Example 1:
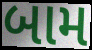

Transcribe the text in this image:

બામ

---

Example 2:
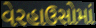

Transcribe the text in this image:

વેરહાઉસોમાં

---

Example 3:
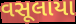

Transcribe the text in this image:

વસૂલાયા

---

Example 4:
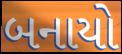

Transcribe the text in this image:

બનાયો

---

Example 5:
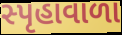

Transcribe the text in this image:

સ્પૃહાવાળા